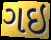
ગઇ